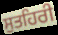
ਸੁਤਹਿਰੀ